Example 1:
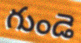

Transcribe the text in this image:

గుండె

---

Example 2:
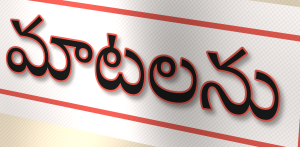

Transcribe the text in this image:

మాటలను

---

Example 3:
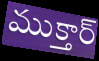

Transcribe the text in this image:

ముక్తార్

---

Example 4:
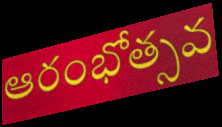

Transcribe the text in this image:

ఆరంభోత్సవ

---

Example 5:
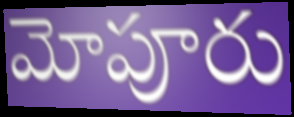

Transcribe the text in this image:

మోపూరు